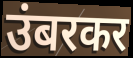
उंबरकर